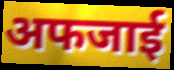
अफजाई